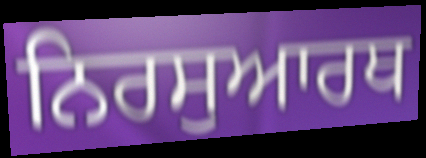
ਨਿਰਸੁਆਰਥ